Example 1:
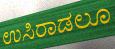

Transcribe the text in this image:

ಉಸಿರಾಡಲೂ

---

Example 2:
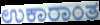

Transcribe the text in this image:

ಉಕಾರಾಂತ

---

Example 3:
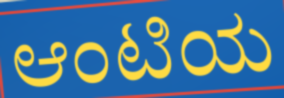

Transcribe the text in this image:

ಆಂಟಿಯ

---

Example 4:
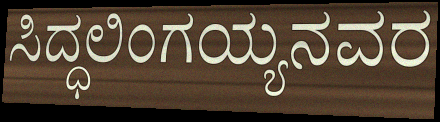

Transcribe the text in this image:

ಸಿದ್ಧಲಿಂಗಯ್ಯನವರ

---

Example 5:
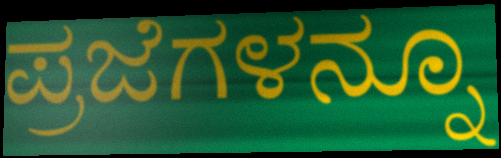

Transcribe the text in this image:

ಪ್ರಜೆಗಳನ್ನೂ